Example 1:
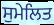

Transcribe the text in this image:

ਸੁਮੇਲਿਤ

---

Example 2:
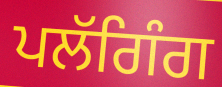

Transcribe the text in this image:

ਪਲੱਗਿੰਗ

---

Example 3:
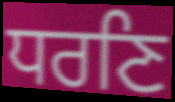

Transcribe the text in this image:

ਧਰਣਿ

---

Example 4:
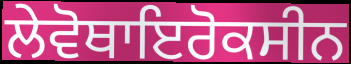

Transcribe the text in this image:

ਲੇਵੋਥਾਇਰੋਕਸੀਨ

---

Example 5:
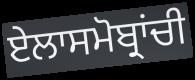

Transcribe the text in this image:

ਏਲਾਸਮੋਬ੍ਰਾਂਚੀ